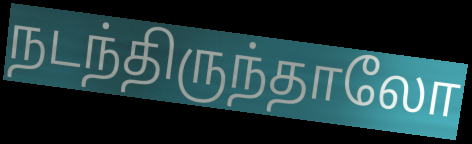
நடந்திருந்தாலோ